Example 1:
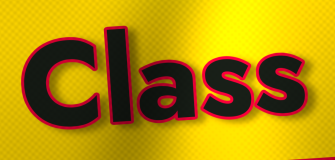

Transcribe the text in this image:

Class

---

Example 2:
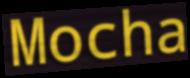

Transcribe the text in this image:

Mocha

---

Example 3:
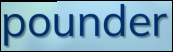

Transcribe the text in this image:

pounder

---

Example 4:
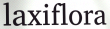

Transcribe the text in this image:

laxiflora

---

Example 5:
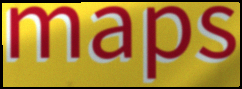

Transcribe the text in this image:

maps